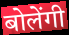
बोलेंगी